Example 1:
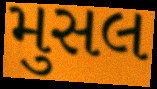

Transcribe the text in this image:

મુસલ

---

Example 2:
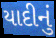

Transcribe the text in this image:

યાદીનું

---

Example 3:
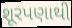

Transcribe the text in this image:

શૂરપણાથી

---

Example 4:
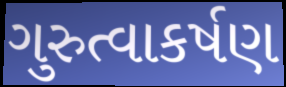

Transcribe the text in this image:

ગુરુત્વાકર્ષણ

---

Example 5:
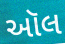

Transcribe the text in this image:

ઑલ